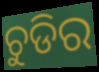
ଚୁଡିର